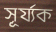
সূৰ্য্যক